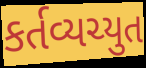
કર્તવ્યચ્યુત